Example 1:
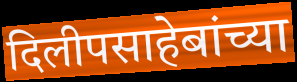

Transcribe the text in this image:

दिलीपसाहेबांच्या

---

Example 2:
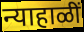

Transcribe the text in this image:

न्याहाळीं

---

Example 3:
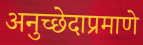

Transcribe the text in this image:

अनुच्छेदाप्रमाणे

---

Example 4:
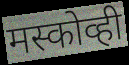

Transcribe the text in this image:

मस्कोव्ही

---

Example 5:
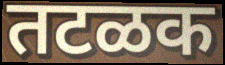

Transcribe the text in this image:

तटळक